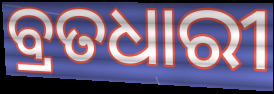
ବ୍ରତଧାରୀ